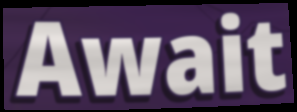
Await